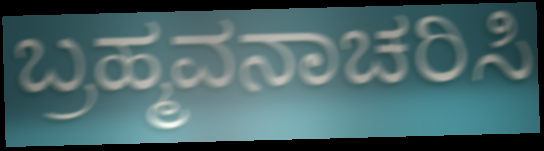
ಬ್ರಹ್ಮವನಾಚರಿಸಿ